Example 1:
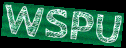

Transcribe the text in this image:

WSPU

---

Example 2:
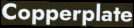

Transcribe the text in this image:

Copperplate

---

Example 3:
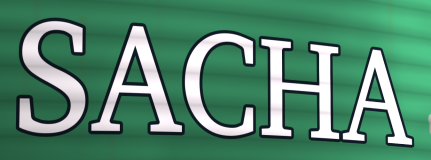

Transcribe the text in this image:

SACHA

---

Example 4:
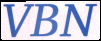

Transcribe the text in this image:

VBN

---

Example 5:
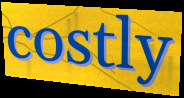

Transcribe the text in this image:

costly